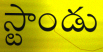
స్టాండు